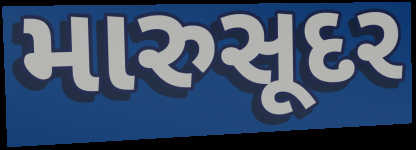
મારુસૂદર